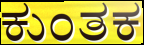
ಕುಂತಕ